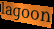
lagoon